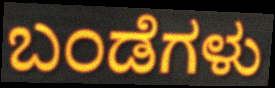
ಬಂಡೆಗಳು